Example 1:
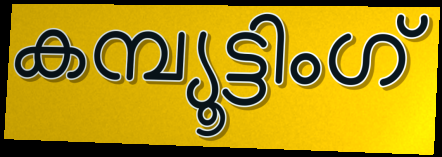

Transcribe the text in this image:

കമ്പ്യൂട്ടിംഗ്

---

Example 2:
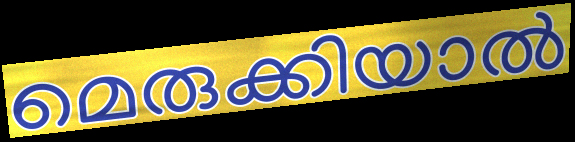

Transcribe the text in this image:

മെരുക്കിയാൽ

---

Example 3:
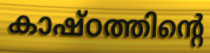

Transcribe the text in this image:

കാഷ്ഠത്തിന്റെ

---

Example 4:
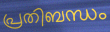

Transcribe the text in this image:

പ്രതിബന്ധം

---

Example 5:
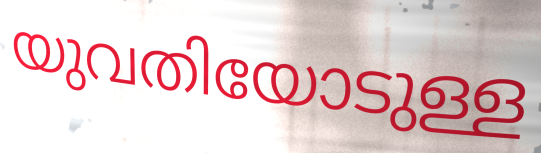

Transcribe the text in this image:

യുവതിയോടുള്ള